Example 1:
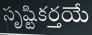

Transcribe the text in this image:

సృష్టికర్తయే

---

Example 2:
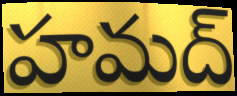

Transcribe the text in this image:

హమద్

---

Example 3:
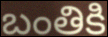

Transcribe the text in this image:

బంతికి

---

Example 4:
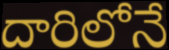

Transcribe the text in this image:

దారిలోనే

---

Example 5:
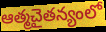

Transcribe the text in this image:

ఆత్మచైతన్యంలో